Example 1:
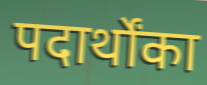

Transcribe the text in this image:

पदार्थोंका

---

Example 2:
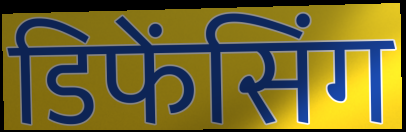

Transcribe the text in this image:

डिफेंसिंग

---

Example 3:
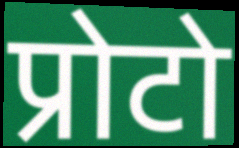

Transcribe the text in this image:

प्रोटो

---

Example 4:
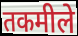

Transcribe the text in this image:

तकमीले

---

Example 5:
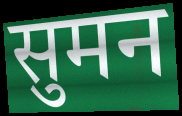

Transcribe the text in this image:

सुमन